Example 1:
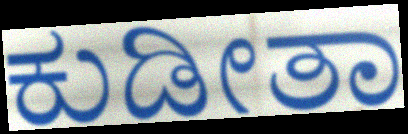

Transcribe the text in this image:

ಕುಡೀತಾ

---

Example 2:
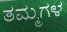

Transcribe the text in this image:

ತಮ್ಮಗಳ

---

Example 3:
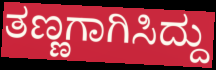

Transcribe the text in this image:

ತಣ್ಣಗಾಗಿಸಿದ್ದು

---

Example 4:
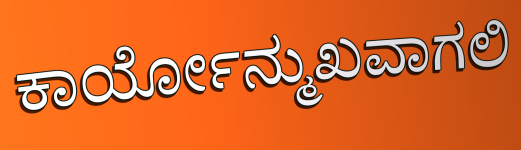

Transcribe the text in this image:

ಕಾರ್ಯೋನ್ಮುಖವಾಗಲಿ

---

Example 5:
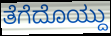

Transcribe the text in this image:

ತೆಗೆದೊಯ್ದು